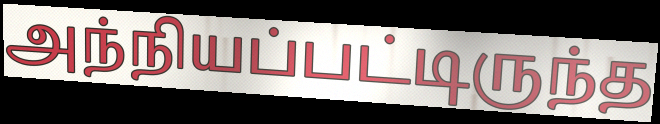
அந்நியப்பட்டிருந்த